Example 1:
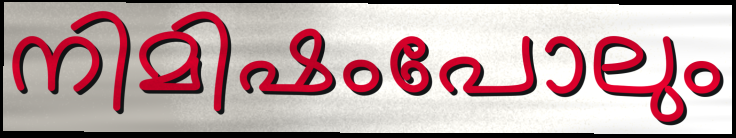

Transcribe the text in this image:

നിമിഷംപോലും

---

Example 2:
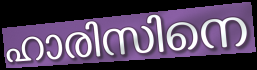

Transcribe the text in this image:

ഹാരിസിനെ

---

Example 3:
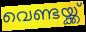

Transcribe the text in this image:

വെണ്ടയ്ക്ക്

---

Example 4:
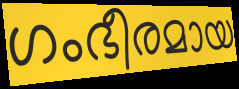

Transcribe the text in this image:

ഗംഭീരമായ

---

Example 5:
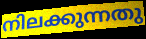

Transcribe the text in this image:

നിലക്കുന്നതു